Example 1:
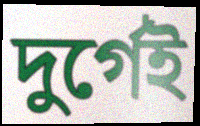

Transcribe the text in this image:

দুর্গেই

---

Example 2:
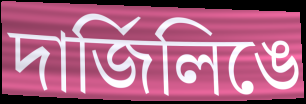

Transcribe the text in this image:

দার্জিলিঙে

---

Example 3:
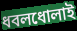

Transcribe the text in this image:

ধবলধোলাই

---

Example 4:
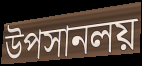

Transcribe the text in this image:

উপসানলয়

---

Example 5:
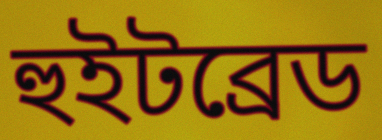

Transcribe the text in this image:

হুইটব্রেড